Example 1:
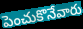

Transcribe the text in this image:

పెంచుకొనేవారు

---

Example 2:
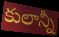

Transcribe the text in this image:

కులాన్నీ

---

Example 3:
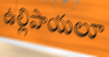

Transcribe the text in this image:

ఉల్లిపాయలూ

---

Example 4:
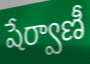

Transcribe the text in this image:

షేర్వాణీ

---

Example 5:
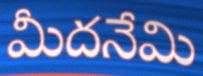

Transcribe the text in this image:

మీదనేమి